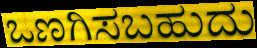
ಒಣಗಿಸಬಹುದು